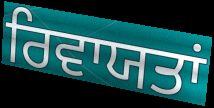
ਰਿਵਾਯਤਾਂ